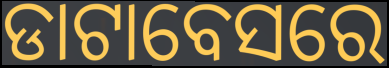
ଡାଟାବେସରେ